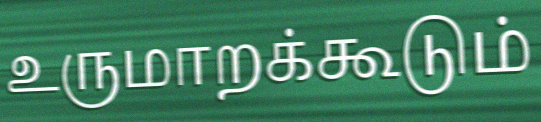
உருமாறக்கூடும்